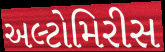
અલ્ટોમિરીસ